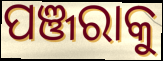
ପଞ୍ଜରାକୁ